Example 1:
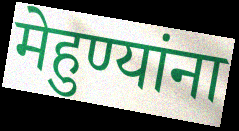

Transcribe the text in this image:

मेहुण्यांना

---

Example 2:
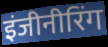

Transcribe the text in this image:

इंजीनीरिंग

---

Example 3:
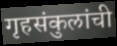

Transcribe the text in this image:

गृहसंकुलांची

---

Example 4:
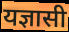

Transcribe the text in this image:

यज्ञासी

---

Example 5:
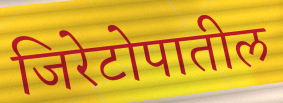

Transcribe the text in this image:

जिरेटोपातील